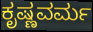
ಕೃಷ್ಣವರ್ಮ